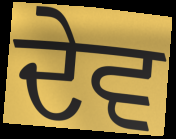
ਦੇਵ